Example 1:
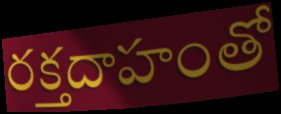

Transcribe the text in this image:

రక్తదాహంతో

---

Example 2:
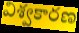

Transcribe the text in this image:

విశ్వకారణ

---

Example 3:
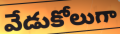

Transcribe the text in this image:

వేడుకోలుగా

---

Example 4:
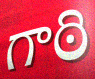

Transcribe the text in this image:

గాఠి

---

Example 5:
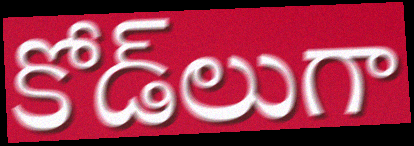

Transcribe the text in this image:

కోడ్‌లుగా